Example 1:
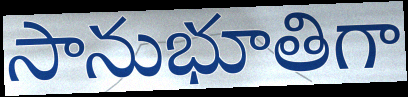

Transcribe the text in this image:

సానుభూతిగా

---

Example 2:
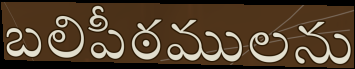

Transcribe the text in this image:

బలిపీఠములను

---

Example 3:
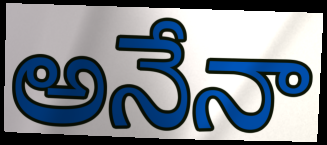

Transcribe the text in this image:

అనేనా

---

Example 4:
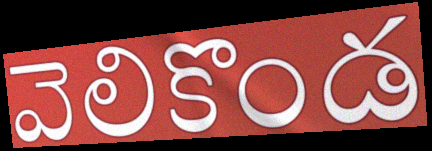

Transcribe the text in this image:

వెలికొండ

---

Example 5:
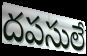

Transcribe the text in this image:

దపసులే